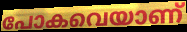
പോകവെയാണ്